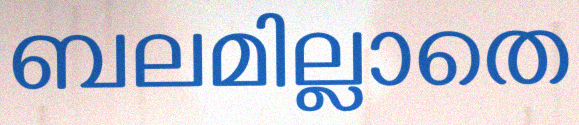
ബലമില്ലാതെ